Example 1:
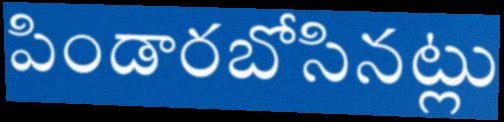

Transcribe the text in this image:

పిండారబోసినట్లు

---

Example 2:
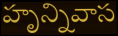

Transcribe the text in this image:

హృన్నివాస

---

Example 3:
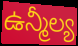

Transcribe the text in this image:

ఉన్మీల్య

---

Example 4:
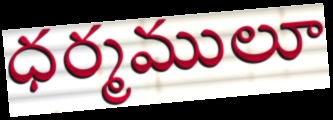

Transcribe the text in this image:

ధర్మములూ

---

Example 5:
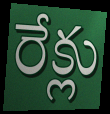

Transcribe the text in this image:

రేక్లు